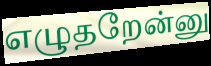
எழுதறேன்னு